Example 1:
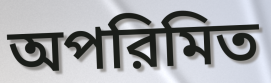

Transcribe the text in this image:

অপরিমিত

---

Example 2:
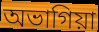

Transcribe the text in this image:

অভাগিয়া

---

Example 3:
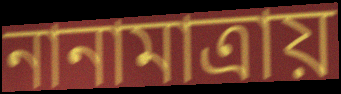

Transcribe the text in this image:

নানামাত্রায়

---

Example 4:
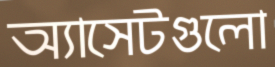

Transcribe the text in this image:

অ্যাসেটগুলো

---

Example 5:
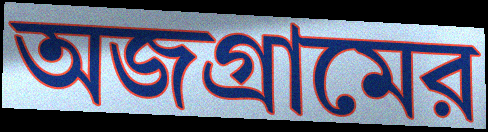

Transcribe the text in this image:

অজগ্রামের